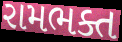
રામભક્ત